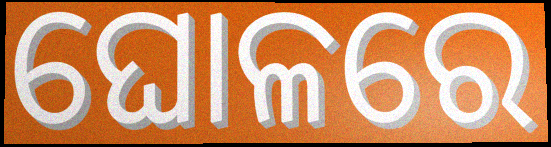
ଘୋଳରେ